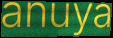
anuya